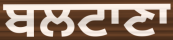
ਬਲਟਾਣਾ